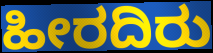
ಹೀರದಿರು